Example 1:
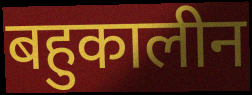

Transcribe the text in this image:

बहुकालीन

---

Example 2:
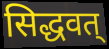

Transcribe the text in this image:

सिद्धवत्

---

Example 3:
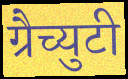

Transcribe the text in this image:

ग्रैच्युटी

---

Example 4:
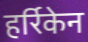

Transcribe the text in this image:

हर्रिकेन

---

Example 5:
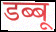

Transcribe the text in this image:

डब्बू